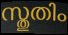
സ്തുതിം